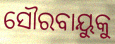
ସୌରବାୟୁକୁ